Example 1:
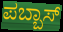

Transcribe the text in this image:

ಪಬ್ಬಾಸ್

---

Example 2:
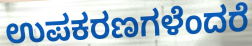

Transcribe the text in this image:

ಉಪಕರಣಗಳೆಂದರೆ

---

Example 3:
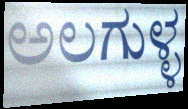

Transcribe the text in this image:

ಅಲಗುಳ್ಳ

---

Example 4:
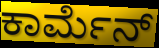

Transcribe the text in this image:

ಕಾರ್ಮೆನ್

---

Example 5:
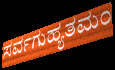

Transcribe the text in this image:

ಸರ್ವಗುಹ್ಯತಮಂ